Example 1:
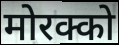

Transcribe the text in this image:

मोरक्को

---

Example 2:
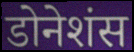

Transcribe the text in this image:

डोनेशंस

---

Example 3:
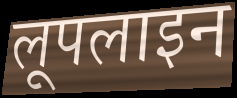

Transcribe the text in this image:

लूपलाइन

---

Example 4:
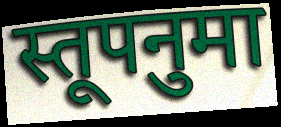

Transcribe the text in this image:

स्तूपनुमा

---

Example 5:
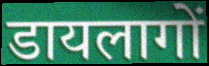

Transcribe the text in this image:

डायलागों